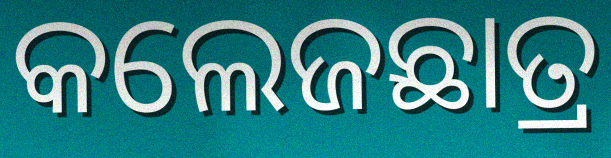
କଲେଜଛାତ୍ର